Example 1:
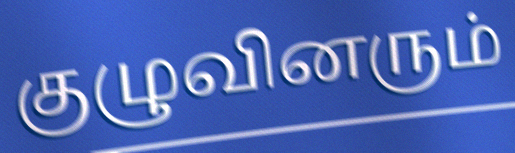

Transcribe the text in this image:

குழுவினரும்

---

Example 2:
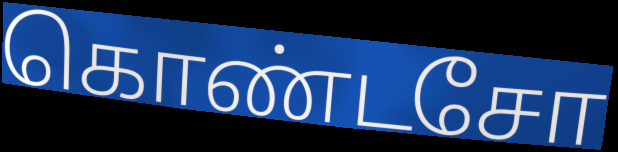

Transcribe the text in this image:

கொண்டசோ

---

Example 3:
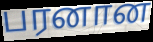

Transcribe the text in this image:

பரனான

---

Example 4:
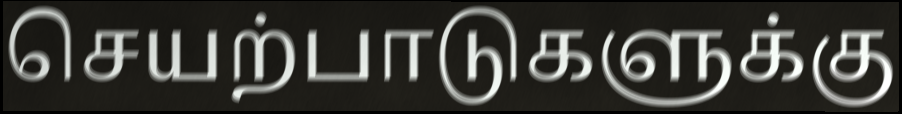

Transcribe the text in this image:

செயற்பாடுகளுக்கு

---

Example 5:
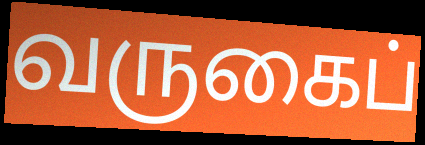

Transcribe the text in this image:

வருகைப்